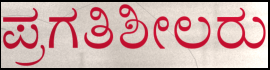
ಪ್ರಗತಿಶೀಲರು